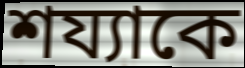
শয্যাকে